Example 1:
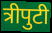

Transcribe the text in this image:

त्रीपुटी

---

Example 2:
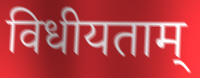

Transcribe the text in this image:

विधीयताम्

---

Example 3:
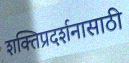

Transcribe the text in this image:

शक्तिप्रदर्शनासाठी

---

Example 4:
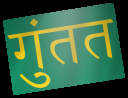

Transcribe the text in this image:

गुंतत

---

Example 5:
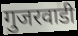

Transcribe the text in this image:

गुजरवाडी